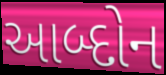
આબ્દોન